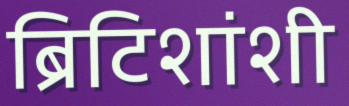
ब्रिटिशांशी